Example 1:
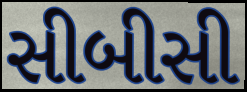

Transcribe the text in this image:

સીબીસી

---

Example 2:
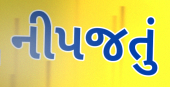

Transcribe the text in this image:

નીપજતું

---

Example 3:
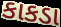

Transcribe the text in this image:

કાકડા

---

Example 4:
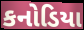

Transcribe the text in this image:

કનોડિયા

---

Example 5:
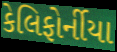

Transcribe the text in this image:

કેલિફોર્નીયા